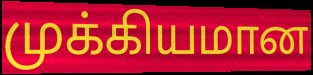
முக்கியமான